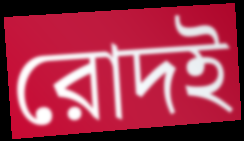
রোদই